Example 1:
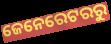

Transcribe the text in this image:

ଜେନେରେଟରରୁ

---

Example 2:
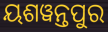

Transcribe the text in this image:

ୟଶୱନ୍ତପୁର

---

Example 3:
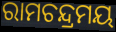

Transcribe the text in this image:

ରାମଚନ୍ଦ୍ରମୟ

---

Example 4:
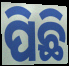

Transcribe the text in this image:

ପିଛି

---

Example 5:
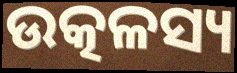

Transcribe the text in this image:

ଉତ୍କଳସ୍ୟ